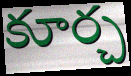
కూర్చ